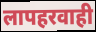
लापहरवाही